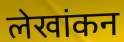
लेखांकन